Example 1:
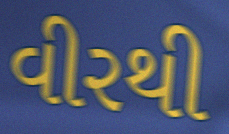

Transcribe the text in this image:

વીરથી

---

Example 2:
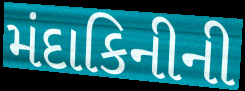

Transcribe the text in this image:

મંદાકિનીની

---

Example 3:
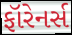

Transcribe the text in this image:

ફૉરેનર્સ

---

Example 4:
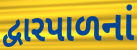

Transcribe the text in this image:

દ્વારપાળનાં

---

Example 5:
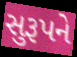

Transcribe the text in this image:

સુરૂપને